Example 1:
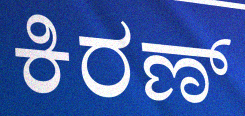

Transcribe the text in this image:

ಕಿರಣ್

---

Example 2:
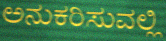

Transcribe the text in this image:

ಅನುಕರಿಸುವಲ್ಲಿ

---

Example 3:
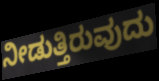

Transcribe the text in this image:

ನೀಡುತ್ತಿರುವುದು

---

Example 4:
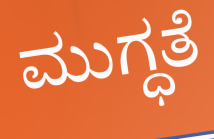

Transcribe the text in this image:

ಮುಗ್ಧತೆ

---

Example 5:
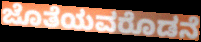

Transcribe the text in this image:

ಜೊತೆಯವರೊಡನೆ